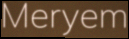
Meryem